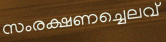
സംരക്ഷണച്ചെലവ്